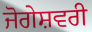
ਜੋਗੇਸ਼ਵਰੀ